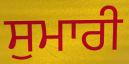
ਸੁਮਾਰੀ